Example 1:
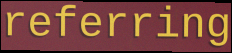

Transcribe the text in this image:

referring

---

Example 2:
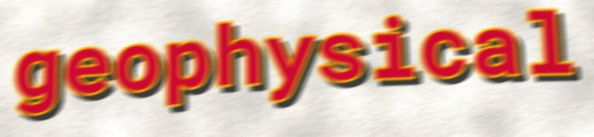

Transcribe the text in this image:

geophysical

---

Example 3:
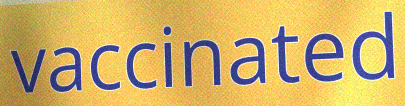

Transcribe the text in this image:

vaccinated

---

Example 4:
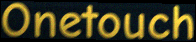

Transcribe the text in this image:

Onetouch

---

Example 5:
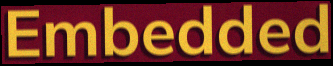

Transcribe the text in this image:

Embedded